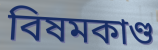
বিষমকাণ্ড